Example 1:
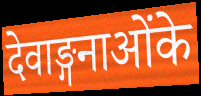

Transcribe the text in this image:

देवाङ्गनाओंके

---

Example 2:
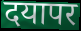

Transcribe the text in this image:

दयापर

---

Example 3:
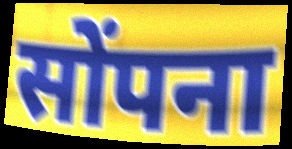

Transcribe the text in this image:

सोंपना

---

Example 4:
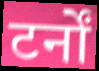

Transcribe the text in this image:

टर्नों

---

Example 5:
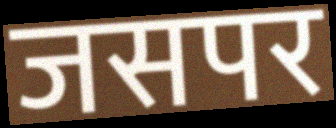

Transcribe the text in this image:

जसपर